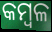
କମ୍ବଳ